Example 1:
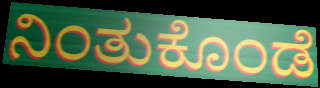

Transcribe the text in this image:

ನಿಂತುಕೊಂಡೆ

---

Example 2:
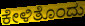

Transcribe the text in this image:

ಕೇಳಿತೊಂದು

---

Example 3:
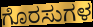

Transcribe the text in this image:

ಗೊರಸುಗಳ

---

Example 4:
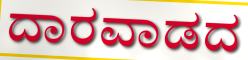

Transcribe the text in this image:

ದಾರವಾಡದ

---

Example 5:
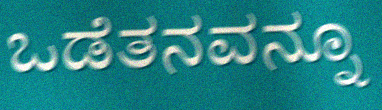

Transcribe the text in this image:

ಒಡೆತನವನ್ನೂ